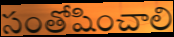
సంతోషించాలి